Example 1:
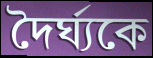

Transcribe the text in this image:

দৈর্ঘ্যকে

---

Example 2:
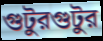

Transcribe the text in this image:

গুটুরগুটুর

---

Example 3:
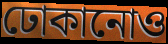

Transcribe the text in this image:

ঢোকানোও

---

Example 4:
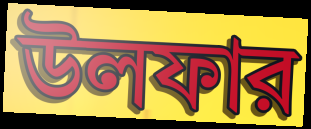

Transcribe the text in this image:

উলফার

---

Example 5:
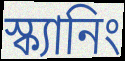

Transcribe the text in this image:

স্ক্যানিং